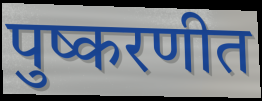
पुष्करणीत